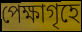
পেক্ষাগৃহে